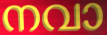
നവാ